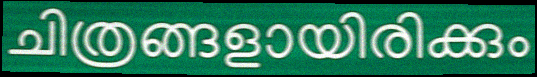
ചിത്രങ്ങളായിരിക്കും